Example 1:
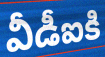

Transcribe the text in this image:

వీడీఐకి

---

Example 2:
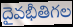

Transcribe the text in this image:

దైవభీతిగల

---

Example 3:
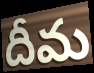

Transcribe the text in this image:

దీమ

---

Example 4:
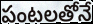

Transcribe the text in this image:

పంటలతోనే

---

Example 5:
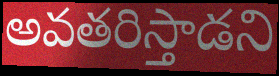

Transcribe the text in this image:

అవతరిస్తాడని